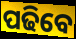
ପଢିବେ